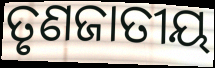
ତୃଣଜାତୀୟ